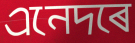
এনেদৰে